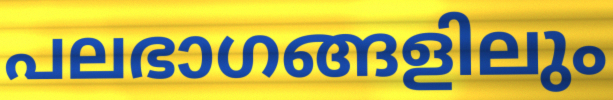
പലഭാഗങ്ങളിലും